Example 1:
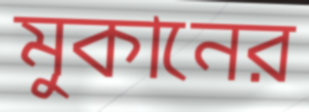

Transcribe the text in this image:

মুকানের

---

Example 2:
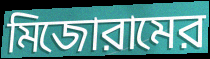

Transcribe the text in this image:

মিজোরামের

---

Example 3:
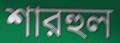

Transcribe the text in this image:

শারহুল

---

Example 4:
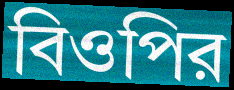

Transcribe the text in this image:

বিওপির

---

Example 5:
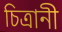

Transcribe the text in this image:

চিত্রানী